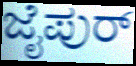
ಜೈಪುರ್